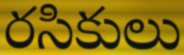
రసికులు